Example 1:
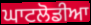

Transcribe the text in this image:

ਘਾਟਲੋਡੀਆ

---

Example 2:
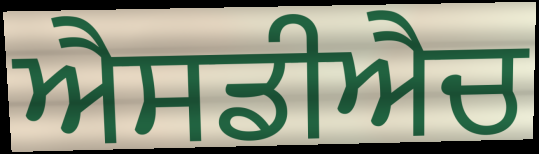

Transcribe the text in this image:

ਐਸਡੀਐਚ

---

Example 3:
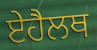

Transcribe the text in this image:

ਏਹੈਲਥ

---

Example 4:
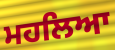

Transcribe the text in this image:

ਮਹਲਿਆ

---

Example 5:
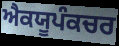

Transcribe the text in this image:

ਐਕਯੂਪੰਕਚਰ